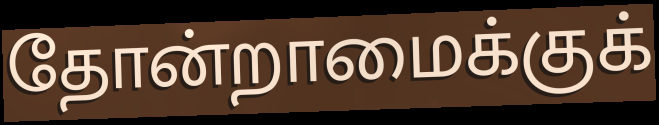
தோன்றாமைக்குக்